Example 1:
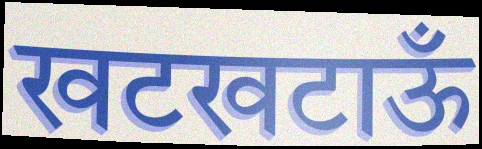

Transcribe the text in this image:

खटखटाऊँ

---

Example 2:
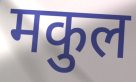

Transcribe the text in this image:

मकुल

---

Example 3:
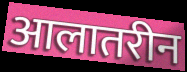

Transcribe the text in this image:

आलातरीन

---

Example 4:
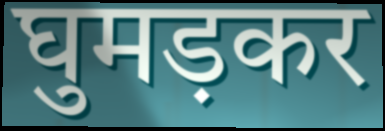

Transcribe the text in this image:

घुमड़कर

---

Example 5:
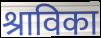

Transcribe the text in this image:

श्राविका